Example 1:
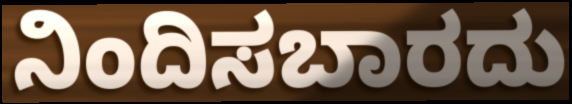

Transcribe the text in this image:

ನಿಂದಿಸಬಾರದು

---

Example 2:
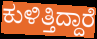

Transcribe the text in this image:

ಕುಳಿತ್ತಿದ್ದಾರೆ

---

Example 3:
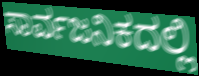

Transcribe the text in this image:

ಸಾರ್ವಜನಿಕದಲ್ಲಿ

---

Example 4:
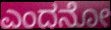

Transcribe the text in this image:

ಎಂದನೋ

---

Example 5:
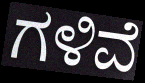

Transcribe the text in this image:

ಗಳಿವೆ